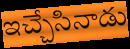
ఇచ్చేసినాడు